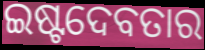
ଇଷ୍ଟଦେବତାର